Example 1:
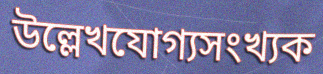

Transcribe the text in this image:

উল্লেখযোগ্যসংখ্যক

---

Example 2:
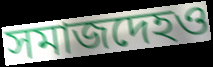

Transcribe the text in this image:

সমাজদেহও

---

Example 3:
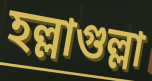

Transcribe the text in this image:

হল্লাগুল্লা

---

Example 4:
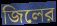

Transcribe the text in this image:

জিলের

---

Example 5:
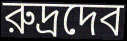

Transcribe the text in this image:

রুদ্রদেব